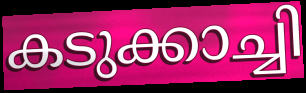
കടുക്കാച്ചി